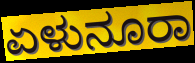
ಏಳುನೂರಾ